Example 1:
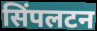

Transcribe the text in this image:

सिंपलटन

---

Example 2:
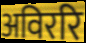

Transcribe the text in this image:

अविररि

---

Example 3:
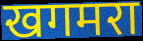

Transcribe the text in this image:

खगमरा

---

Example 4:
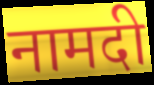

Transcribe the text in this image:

नामदी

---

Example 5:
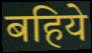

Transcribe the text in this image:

बहिये